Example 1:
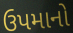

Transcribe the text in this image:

ઉપમાનો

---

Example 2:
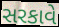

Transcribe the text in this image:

સરકાવે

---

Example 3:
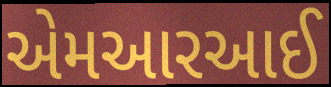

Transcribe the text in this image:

એમઆરઆઈ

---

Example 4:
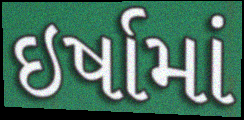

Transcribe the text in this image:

ઇર્ષામાં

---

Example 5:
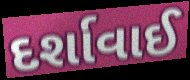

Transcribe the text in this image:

દર્શાવાઈ